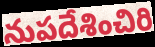
నుపదేశించిరి